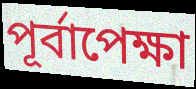
পূর্বাপেক্ষা